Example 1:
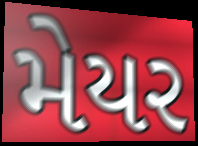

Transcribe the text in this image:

મેયર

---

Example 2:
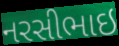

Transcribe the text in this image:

નરસીભાઇ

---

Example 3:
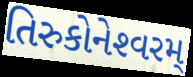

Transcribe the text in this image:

તિરુકોનેશ્‍વરમ્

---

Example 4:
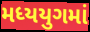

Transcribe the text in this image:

મધ્યયુગમાં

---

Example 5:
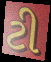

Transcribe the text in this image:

ટી